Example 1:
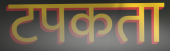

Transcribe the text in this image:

टपकता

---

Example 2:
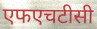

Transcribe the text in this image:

एफएचटीसी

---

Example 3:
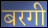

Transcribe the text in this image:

बरगी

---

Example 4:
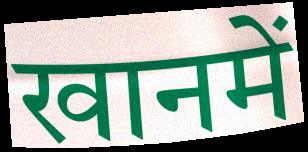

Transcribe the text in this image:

खानमें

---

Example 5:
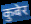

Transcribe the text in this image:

कुबेर